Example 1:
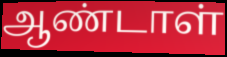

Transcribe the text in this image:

ஆண்டாள்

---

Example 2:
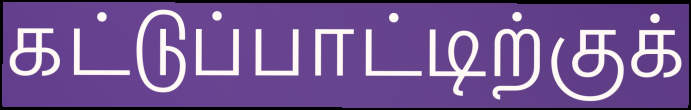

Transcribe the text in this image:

கட்டுப்பாட்டிற்குக்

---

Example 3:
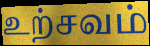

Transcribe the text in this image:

உற்சவம்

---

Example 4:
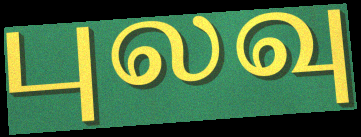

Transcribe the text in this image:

புலவு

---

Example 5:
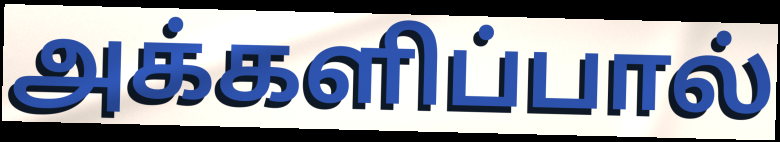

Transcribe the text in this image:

அக்களிப்பால்